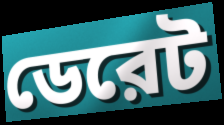
ডেরেট